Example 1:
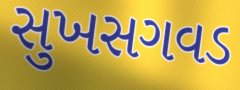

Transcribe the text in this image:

સુખસગવડ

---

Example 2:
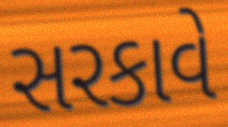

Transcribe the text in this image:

સરકાવે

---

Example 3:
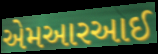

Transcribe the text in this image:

એમઆરઆઈ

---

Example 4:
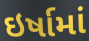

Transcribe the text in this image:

ઇર્ષામાં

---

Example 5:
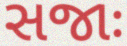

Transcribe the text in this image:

સજાઃ